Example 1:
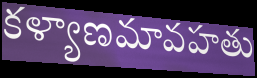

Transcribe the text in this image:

కళ్యాణమావహతు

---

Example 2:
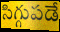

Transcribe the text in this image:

సిగ్గుపడే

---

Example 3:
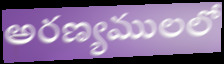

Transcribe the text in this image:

అరణ్యములలో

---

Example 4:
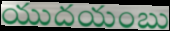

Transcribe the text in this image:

యుదయంబు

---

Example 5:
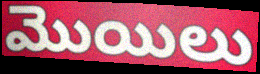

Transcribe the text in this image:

మొయిలు